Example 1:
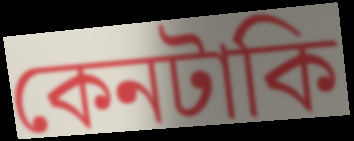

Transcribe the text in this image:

কেনটাকি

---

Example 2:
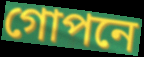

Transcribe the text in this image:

গোপনে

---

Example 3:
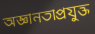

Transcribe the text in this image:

অজ্ঞানতাপ্রযুক্ত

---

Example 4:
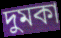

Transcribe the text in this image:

দুমকা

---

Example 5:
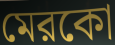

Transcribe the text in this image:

মেরকো